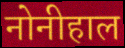
नोनीहाल